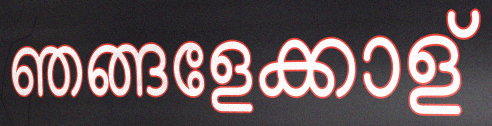
ഞങ്ങളേക്കാള്